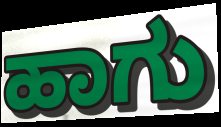
ಹಾಗು